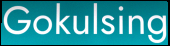
Gokulsing